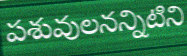
పశువులనన్నిటిని